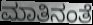
ಮಾತಿನಂತೆ